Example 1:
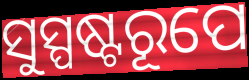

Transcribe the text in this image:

ସୁସ୍ପଷ୍ଟରୂପେ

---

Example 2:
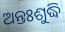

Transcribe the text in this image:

ଅନ୍ତଃଶୁଦ୍ଧି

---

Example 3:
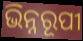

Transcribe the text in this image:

ଭିନ୍ନରୂପୀ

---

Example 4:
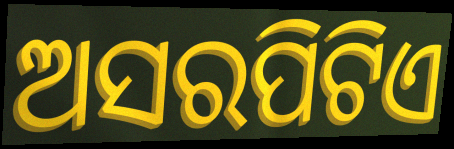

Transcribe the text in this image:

ଅସରପିଟିଏ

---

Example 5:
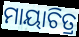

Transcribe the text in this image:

ମାୟାଚିତ୍ର